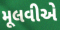
મૂલવીએ